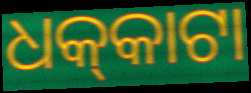
ଧକ୍‌କାଟା